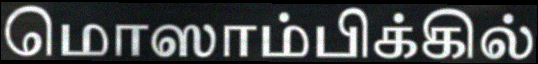
மொஸாம்பிக்கில்